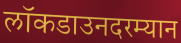
लॉकडाउनदरम्यान